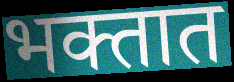
भक्तात